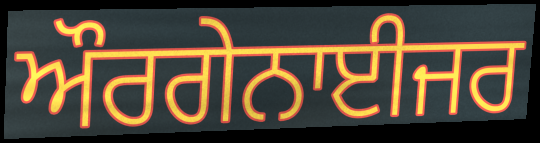
ਔਰਗੇਨਾਈਜਰ